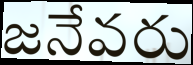
జనేవరు